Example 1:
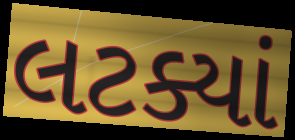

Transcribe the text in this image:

લટક્યાં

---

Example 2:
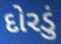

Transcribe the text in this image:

દોરડું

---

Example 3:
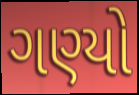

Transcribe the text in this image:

ગણ્યો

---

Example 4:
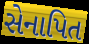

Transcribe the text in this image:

સેનાપિત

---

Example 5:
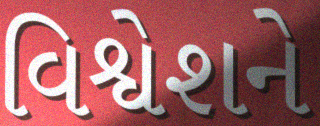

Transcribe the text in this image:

વિશ્વેશને